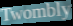
Twombly